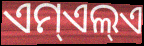
ଏମ୍ଏଲ୍ଏ